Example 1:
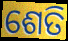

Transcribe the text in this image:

ଶେତି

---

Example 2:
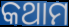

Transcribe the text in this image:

କଥାମ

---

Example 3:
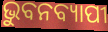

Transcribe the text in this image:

ଭୁବନବ୍ୟାପୀ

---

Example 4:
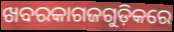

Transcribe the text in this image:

ଖବରକାଗଜଗୁଡ଼ିକରେ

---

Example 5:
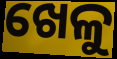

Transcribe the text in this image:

ଖେଳୁ